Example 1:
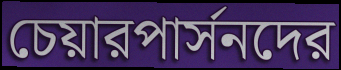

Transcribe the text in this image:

চেয়ারপার্সনদের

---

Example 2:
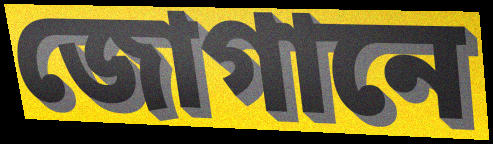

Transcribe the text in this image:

জোগানে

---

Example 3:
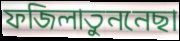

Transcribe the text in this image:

ফজিলাতুননেছা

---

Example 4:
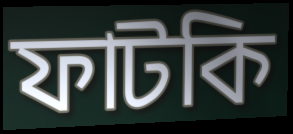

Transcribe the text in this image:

ফাটকি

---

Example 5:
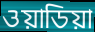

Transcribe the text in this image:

ওয়াডিয়া